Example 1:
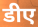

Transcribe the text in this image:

डीए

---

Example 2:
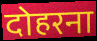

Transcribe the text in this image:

दोहरना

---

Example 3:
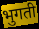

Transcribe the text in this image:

भुगती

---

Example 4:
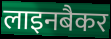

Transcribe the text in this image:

लाइनबैकर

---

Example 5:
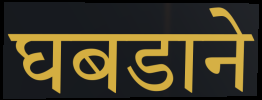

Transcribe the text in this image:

घबडाने